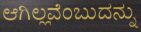
ಆಗಿಲ್ಲವೆಂಬುದನ್ನು